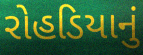
રોહડિયાનું